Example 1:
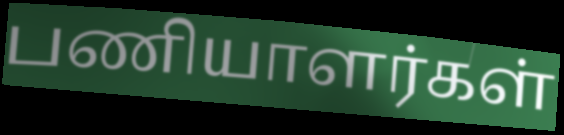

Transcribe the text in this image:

பணியாளர்கள்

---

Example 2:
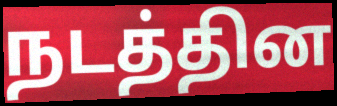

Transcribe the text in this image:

நடத்தின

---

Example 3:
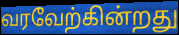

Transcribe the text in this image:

வரவேற்கின்றது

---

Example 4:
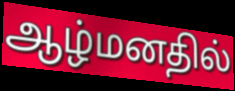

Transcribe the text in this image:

ஆழ்மனதில்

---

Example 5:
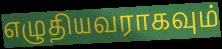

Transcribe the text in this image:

எழுதியவராகவும்